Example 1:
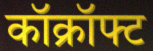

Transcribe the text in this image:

कॉक्रॉफ्ट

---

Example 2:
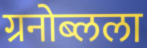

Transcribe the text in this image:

ग्रनोब्लला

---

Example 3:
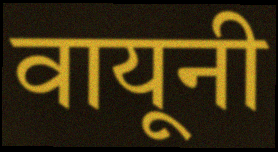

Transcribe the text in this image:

वायूनी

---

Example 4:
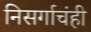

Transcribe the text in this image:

निसर्गाचंही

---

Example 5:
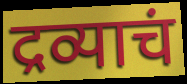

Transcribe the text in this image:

द्रव्याचं